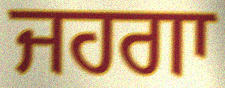
ਜਹਗਾ